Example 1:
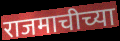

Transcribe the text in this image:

राजमाचीच्या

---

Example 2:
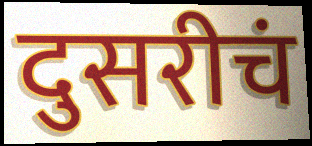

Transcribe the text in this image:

दुसरीचं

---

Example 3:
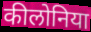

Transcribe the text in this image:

कीलोनिया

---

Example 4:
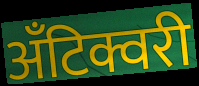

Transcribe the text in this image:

अँटिक्वरी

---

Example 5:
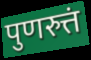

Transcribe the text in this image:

पुणरुत्तं